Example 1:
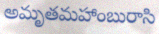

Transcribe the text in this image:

అమృతమహాంబురాసి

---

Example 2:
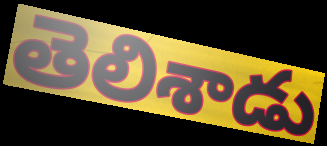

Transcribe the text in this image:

తెలిశాడు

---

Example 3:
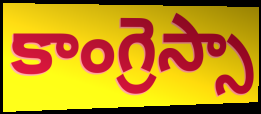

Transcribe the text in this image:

కాంగ్రెస్సా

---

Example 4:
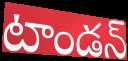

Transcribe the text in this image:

టాండన్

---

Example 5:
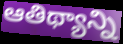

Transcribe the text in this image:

ఆతిథ్యాన్ని